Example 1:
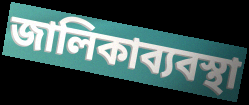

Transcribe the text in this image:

জালিকাব্যবস্থা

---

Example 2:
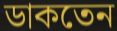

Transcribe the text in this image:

ডাকতেন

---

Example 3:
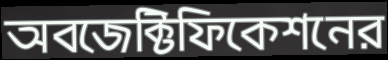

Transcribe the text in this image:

অবজেক্টিফিকেশনের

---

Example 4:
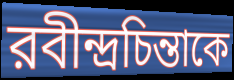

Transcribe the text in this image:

রবীন্দ্রচিন্তাকে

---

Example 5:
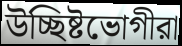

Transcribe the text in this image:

উচ্ছিষ্টভোগীরা